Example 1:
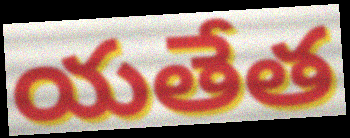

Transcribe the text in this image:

యతేత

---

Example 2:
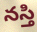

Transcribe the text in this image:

నస్తి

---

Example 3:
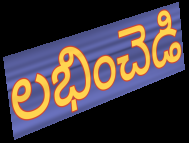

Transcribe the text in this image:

లభించెడి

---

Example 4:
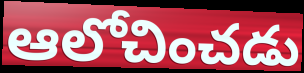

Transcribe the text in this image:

ఆలోచించడు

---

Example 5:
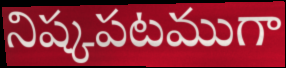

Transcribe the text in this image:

నిష్కపటముగా